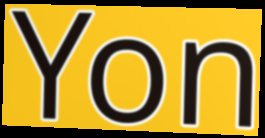
Yon